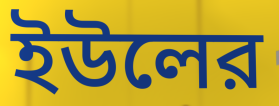
ইউলের